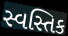
સ્વસ્તિક